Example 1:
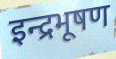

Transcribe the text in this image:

इन्द्रभूषण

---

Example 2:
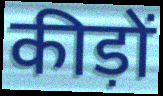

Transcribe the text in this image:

कीड़ों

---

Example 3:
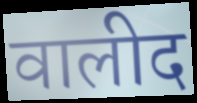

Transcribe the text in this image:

वालीद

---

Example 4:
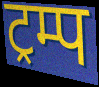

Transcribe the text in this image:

ट्रम्‍प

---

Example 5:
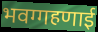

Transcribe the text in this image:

भवग्गहणाई